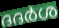
ദദർശ